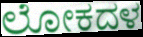
ಲೋಕದಳ